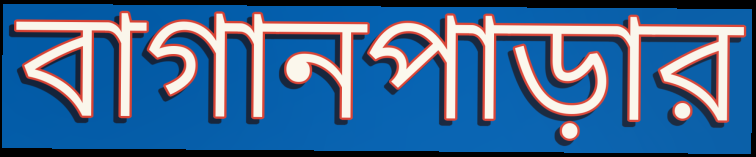
বাগানপাড়ার